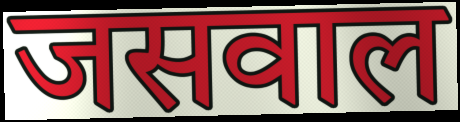
जसवाल